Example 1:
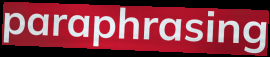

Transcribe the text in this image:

paraphrasing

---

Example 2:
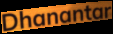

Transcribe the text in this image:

Dhanantar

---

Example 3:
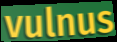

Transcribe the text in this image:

vulnus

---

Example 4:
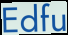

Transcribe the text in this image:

Edfu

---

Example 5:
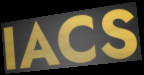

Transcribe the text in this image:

IACS